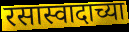
रसास्वादाच्या